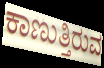
ಕಾಣುತ್ತಿರುವ